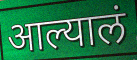
आल्यालं